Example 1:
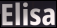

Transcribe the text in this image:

Elisa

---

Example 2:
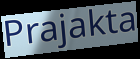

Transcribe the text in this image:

Prajakta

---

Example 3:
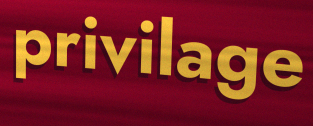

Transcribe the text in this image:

privilage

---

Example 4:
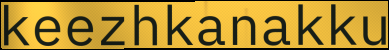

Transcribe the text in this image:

keezhkanakku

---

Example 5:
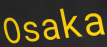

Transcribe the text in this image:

Osaka